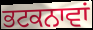
ਭਟਕਨਾਵਾਂ